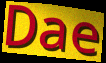
Dae